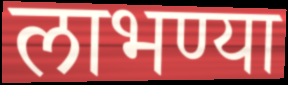
लाभण्या